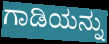
ಗಾಡಿಯನ್ನು